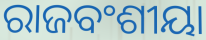
ରାଜବଂଶୀୟା